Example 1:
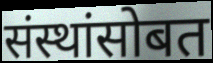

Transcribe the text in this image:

संस्थांसोबत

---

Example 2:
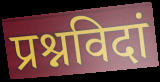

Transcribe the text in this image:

प्रश्नविदां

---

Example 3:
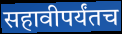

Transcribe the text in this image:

सहावीपर्यंतच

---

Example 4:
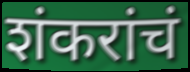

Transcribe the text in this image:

शंकरांचं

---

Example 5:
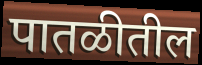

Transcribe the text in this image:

पातळीतील